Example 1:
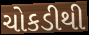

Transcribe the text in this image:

ચોકડીથી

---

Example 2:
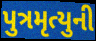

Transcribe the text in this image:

પુત્રમૃત્યુની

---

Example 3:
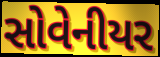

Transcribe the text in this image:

સોવેનીયર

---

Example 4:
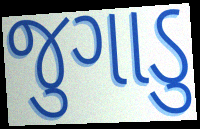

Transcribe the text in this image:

જુગાડુ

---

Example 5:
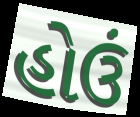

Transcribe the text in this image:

હોઉં